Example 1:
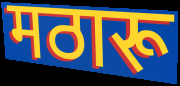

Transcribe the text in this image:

मठारू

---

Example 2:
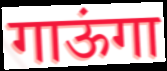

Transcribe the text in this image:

गाऊंगा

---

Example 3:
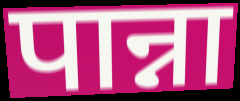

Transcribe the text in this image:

पान्ना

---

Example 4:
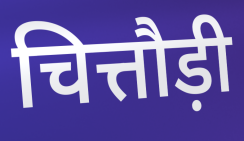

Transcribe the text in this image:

चित्तौड़ी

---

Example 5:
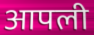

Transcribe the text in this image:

आपली